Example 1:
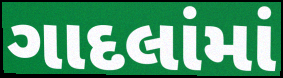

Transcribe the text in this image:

ગાદલાંમાં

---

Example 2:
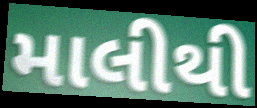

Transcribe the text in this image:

માલીથી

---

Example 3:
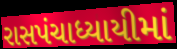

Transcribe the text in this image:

રાસપંચાધ્યાયીમાં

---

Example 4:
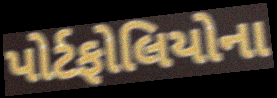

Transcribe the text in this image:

પોર્ટફોલિયોના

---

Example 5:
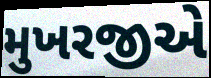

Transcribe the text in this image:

મુખરજીએ